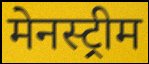
मेनस्ट्रीम